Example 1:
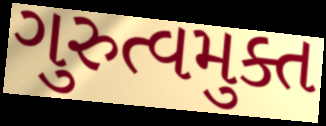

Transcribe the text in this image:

ગુરુત્વમુક્ત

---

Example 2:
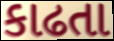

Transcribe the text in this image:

કાઢતા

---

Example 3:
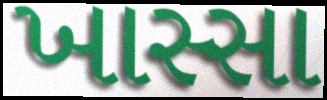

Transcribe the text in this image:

ખાસ્સા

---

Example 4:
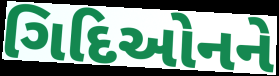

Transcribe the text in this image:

ગિદિઓનને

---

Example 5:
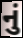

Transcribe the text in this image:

નું